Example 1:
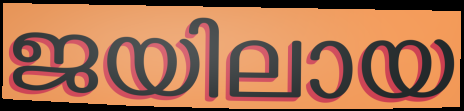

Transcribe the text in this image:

ജയിലായ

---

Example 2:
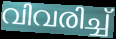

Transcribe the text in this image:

വിവരിച്ച്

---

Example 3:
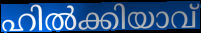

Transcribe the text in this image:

ഹിൽക്കിയാവ്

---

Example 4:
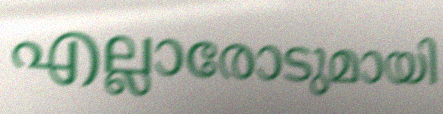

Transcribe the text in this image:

എല്ലാരോടുമായി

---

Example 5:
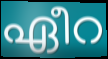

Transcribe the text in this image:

ഏീറ